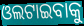
ଓଲଟାଇବାକୁ